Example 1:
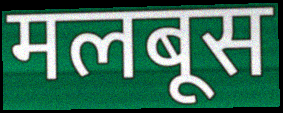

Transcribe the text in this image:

मलबूस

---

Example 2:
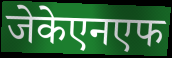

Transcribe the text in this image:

जेकेएनएफ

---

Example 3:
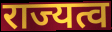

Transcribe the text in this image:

राज्यत्व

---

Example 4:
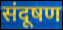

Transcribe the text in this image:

संदूषण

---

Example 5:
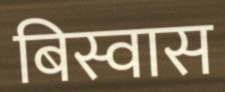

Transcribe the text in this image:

बिस्वास